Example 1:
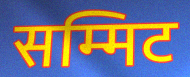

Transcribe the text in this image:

सम्मिट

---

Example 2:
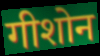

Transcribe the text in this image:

गीशोन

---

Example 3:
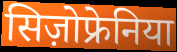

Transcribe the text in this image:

सिज़ोफ्रेनिया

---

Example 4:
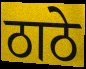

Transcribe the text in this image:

ठाठे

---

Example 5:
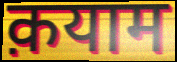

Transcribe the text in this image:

क़याम